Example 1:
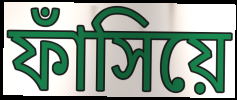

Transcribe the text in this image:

ফাঁসিয়ে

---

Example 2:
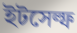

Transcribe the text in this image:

ইটসেল্ফ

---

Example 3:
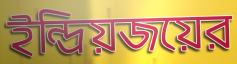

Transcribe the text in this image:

ইন্দ্রিয়জয়ের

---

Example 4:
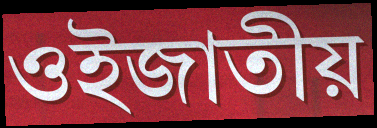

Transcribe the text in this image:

ওইজাতীয়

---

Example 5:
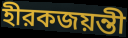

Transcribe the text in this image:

হীরকজয়ন্তী